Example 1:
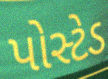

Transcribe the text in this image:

પોસ્ટેડ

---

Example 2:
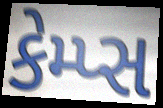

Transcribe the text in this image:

કેમ્પ્સ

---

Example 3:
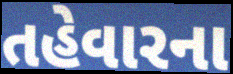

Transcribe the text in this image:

તહેવારના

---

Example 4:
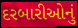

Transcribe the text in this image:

દરબારીઓનું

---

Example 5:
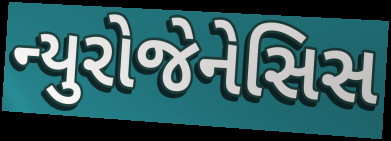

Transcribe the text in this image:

ન્યુરોજેનેસિસ